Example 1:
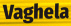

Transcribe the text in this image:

Vaghela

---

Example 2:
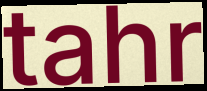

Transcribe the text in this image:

tahr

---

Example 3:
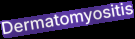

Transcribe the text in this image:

Dermatomyositis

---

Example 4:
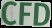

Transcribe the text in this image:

CFD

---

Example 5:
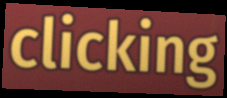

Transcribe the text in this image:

clicking